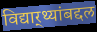
विद्यार्थ्यांबद्दल